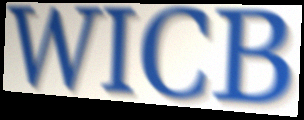
WICB